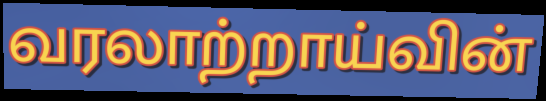
வரலாற்றாய்வின்